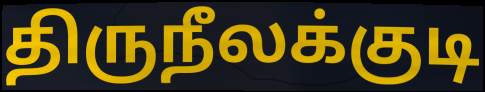
திருநீலக்குடி